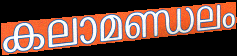
കലാമണ്ഡലം